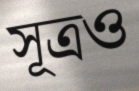
সূত্ৰও